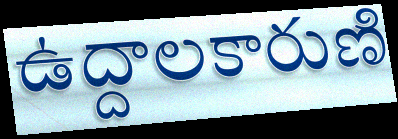
ఉద్దాలకారుణి